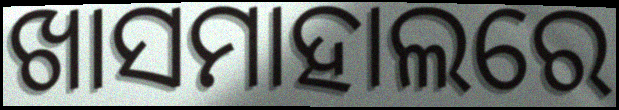
ଖାସମାହାଲରେ